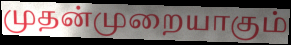
முதன்முறையாகும்